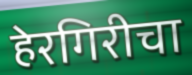
हेरगिरीचा